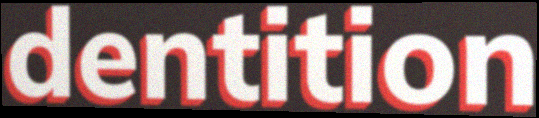
dentition